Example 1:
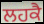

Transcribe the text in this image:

ਲਹਕੈ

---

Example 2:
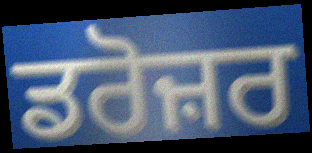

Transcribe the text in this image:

ਡਰੋਜ਼ਰ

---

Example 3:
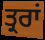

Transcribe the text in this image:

ਤ੍ਰਰਾਂ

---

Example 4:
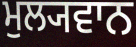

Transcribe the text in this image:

ਮੁਲ੍ਯਵਾਨ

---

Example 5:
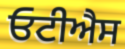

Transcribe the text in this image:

ਓਟੀਐਸ